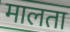
मालता